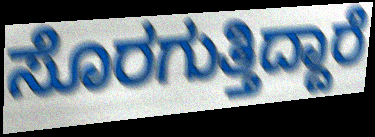
ಸೊರಗುತ್ತಿದ್ದಾರೆ